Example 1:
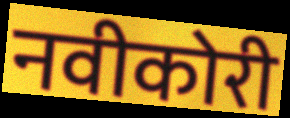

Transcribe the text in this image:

नवीकोरी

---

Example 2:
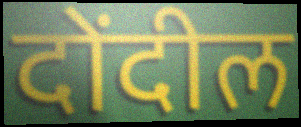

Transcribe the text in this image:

दोंदील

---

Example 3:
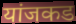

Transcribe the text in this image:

यांजकड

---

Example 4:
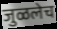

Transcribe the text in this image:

जुळलेच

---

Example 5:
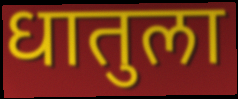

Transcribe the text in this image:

धातुला